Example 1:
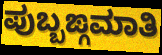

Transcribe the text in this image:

ಪುಬ್ಬಙ್ಗಮಾತಿ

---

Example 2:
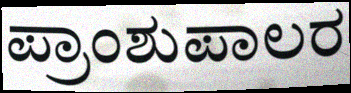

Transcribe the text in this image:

ಪ್ರಾಂಶುಪಾಲರ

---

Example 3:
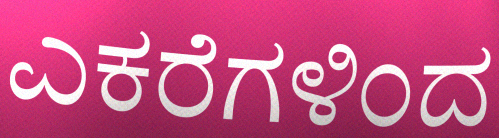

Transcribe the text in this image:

ಎಕರೆಗಳಿಂದ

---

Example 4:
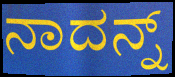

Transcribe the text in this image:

ನಾದನ್ನ್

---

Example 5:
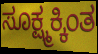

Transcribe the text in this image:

ಸೂಕ್ಷ್ಮಕ್ಕಿಂತ